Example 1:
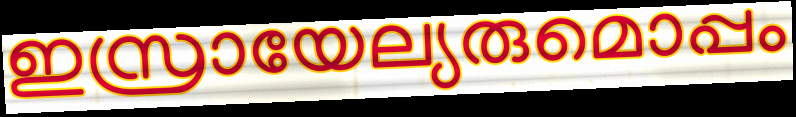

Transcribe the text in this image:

ഇസ്രായേല്യരുമൊപ്പം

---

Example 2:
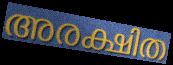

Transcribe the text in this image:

അരക്ഷിത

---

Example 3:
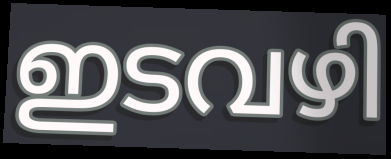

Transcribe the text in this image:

ഇടവഴി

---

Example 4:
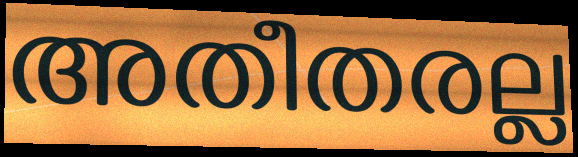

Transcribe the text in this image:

അതീതരല്ല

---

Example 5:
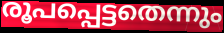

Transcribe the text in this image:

രൂപപ്പെട്ടതെന്നും